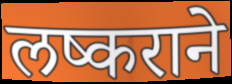
लष्कराने